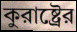
কুরাষ্ট্রের